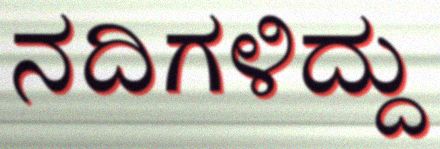
ನದಿಗಳಿದ್ದು